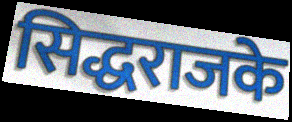
सिद्धराजके